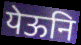
येऊनि